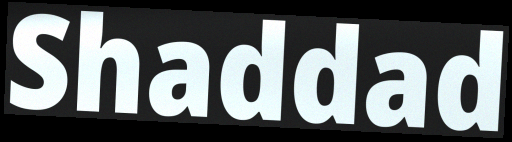
Shaddad